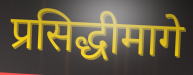
प्रसिद्धीमागे